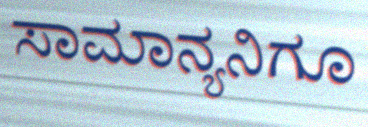
ಸಾಮಾನ್ಯನಿಗೂ